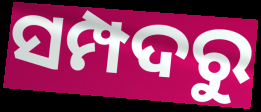
ସମ୍ପଦରୁ